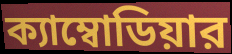
ক্যাম্বোডিয়ার